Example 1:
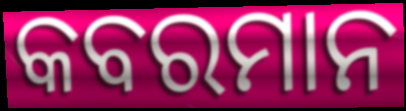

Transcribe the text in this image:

କବରମାନ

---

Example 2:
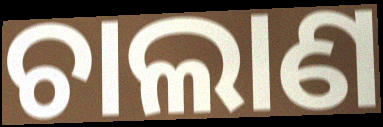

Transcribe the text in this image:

ଚାଲାଣ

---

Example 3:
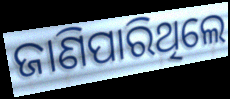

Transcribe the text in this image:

ଜାଣିପାରିଥିଲେ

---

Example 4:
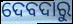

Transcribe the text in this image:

ଦେବଦାରୁ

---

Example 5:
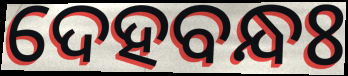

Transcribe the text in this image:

ଦେହବନ୍ଧଃ